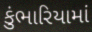
કુંભારિયામાં